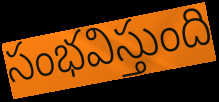
సంభవిస్తుంది